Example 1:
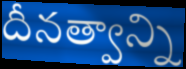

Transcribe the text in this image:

దీనత్వాన్ని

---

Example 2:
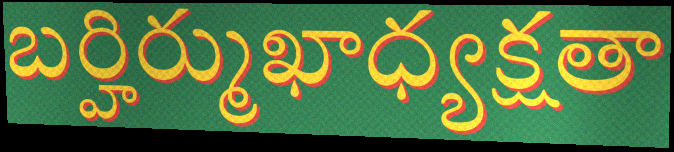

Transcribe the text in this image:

బర్హిర్ముఖాధ్యక్షతా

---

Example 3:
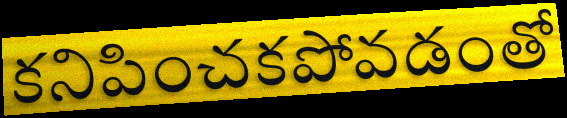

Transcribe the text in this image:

కనిపించకపోవడంతో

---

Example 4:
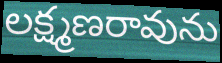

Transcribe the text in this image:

లక్ష్మణరావును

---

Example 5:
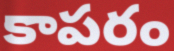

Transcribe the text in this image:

కాపరం